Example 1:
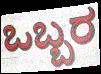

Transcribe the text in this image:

ಒಬ್ಬರ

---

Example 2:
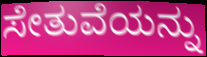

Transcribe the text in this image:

ಸೇತುವೆಯನ್ನು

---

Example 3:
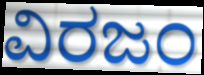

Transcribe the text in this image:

ವಿರಜಂ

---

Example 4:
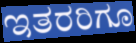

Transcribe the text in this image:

ಇತರರಿಗೂ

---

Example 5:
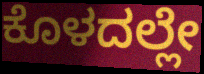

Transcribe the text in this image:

ಕೊಳದಲ್ಲೇ